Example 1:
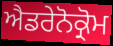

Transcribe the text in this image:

ਐਡਰੇਨੋਕ੍ਰੋਮ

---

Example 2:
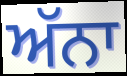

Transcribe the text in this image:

ਅੱਨਾ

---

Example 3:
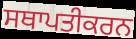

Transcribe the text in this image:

ਸਥਾਪਤੀਕਰਨ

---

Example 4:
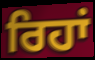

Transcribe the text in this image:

ਰਿਹਾਂ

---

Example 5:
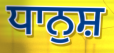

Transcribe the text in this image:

ਧਾਨੁਸ਼